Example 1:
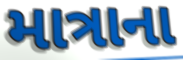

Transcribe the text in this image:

માત્રાના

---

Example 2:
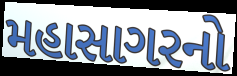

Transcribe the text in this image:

મહાસાગરનો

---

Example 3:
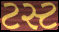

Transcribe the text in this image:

ટસ્ટ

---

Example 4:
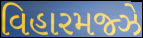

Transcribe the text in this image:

વિહારમજ્ઝે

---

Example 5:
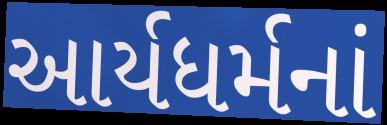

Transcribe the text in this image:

આર્યધર્મનાં